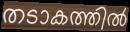
തടാകത്തിൽ